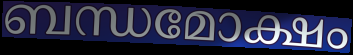
ബന്ധമോക്ഷം